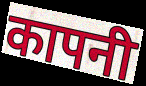
कापनी